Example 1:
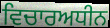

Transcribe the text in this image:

ਵਿਚਾਰਅਧੀਨ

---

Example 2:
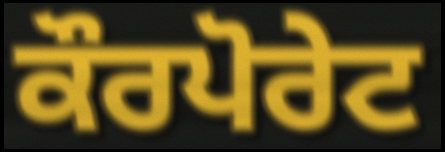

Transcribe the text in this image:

ਕੌਰਪੋਰੇਟ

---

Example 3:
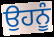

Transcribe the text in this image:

ਉਹਨੂੰ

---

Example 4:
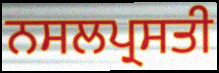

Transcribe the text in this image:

ਨਸਲਪ੍ਰਸਤੀ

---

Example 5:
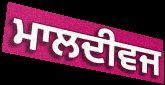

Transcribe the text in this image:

ਮਾਲਦੀਵਜ